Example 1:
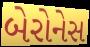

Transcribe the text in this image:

બેરોનેસ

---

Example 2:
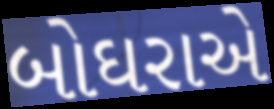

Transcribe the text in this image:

બોઘરાએ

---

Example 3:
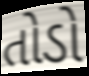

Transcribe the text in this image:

તોડો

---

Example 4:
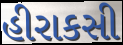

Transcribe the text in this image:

હીરાકસી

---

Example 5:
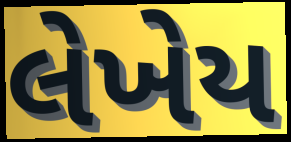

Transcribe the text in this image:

લેખેય